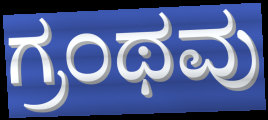
ಗ್ರಂಥವು